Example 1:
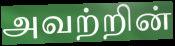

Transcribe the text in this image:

அவற்றின்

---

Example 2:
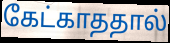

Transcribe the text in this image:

கேட்காததால்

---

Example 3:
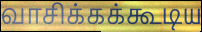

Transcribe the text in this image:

வாசிக்கக்கூடிய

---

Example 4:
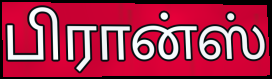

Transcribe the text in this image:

பிரான்ஸ்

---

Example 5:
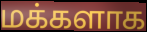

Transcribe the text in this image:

மக்களாக